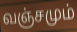
வஞ்சமும்